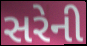
સરેની